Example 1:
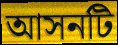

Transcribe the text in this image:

আসনটি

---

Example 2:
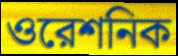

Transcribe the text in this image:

ওরেশনিক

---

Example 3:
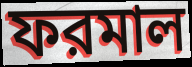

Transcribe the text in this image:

ফরমাল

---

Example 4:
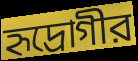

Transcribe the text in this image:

হৃদ্রোগীর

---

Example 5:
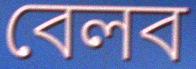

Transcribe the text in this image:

বেলব